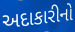
અદાકારીનો